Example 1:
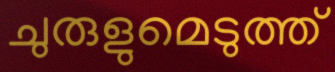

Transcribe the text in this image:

ചുരുളുമെടുത്ത്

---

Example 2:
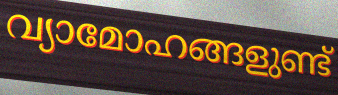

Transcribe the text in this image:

വ്യാമോഹങ്ങളുണ്ട്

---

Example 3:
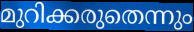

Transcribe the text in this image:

മുറിക്കരുതെന്നും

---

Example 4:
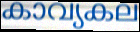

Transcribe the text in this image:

കാവ്യകല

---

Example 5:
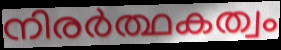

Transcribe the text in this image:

നിരർത്ഥകത്വം